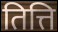
तित्ति